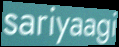
sariyaagi